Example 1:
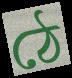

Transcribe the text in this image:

ঠে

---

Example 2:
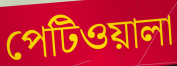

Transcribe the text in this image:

পেটিওয়ালা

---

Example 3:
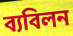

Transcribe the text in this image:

ব্যবিলন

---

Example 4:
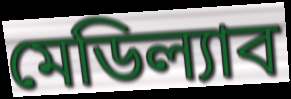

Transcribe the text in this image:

মেডিল্যাব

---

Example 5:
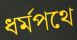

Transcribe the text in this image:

ধর্মপথে